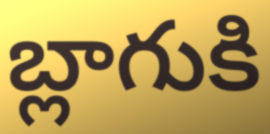
బ్లాగుకి